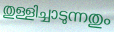
തുള്ളിച്ചാടുന്നതും